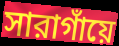
সারাগাঁয়ে